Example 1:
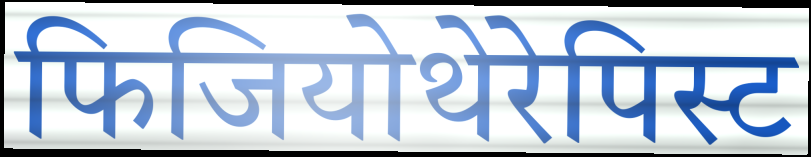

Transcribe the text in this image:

फिजियोथेरेपिस्ट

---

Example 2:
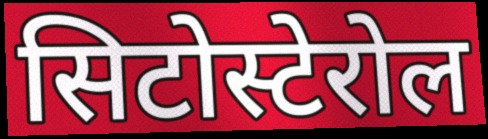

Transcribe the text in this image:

सिटोस्टेरोल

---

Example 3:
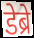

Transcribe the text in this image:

डेब्रे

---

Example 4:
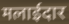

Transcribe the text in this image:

मलाईदार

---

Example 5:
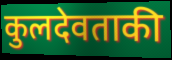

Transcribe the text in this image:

कुलदेवताकी